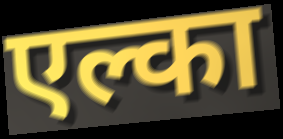
एल्का